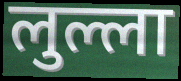
लुल्ला